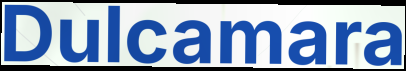
Dulcamara